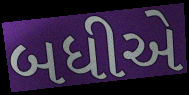
બધીએ